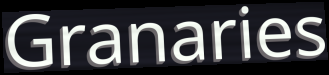
Granaries